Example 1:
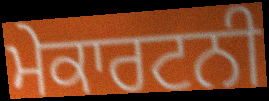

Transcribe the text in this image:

ਮੇਕਾਰਟਨੀ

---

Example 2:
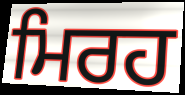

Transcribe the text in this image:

ਮਿਰਹ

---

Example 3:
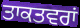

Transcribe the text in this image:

ਤਾਕਤਵਰਾਂ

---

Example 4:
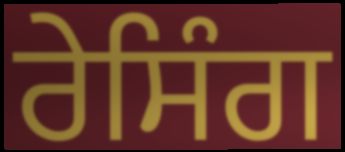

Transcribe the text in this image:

ਰੇਸਿੰਗ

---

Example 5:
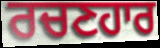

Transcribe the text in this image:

ਰਚਣਹਾਰ